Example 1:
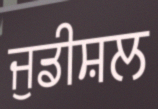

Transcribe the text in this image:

ਜੁਡੀਸ਼ਲ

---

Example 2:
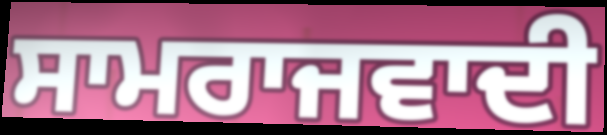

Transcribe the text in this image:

ਸਾਮਰਾਜਵਾਦੀ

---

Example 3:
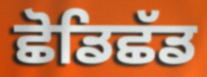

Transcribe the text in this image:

ਛੋਡਿਛੱਡ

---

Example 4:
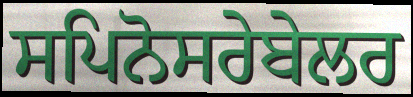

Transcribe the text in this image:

ਸਪਿਨੋਸਰੇਬੇਲਰ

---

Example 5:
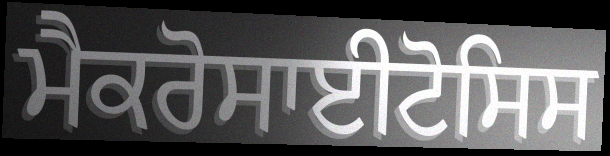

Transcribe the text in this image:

ਮੈਕਰੋਸਾਈਟੋਸਿਸ